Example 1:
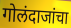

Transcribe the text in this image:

गोलंदाजांचा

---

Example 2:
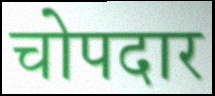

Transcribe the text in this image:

चोपदार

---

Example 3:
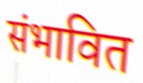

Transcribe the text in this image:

संभावित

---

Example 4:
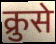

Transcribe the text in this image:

क्रुसे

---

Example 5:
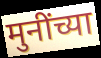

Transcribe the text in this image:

मुनींच्या